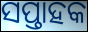
ସପ୍ତାହକ